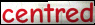
centred